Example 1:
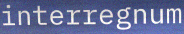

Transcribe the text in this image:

interregnum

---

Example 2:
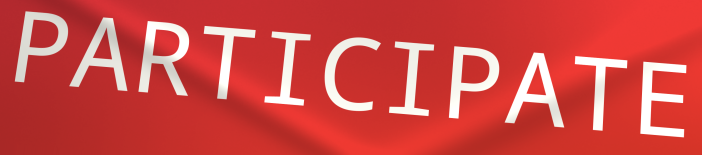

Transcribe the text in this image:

PARTICIPATE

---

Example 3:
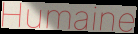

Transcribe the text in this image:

Humaine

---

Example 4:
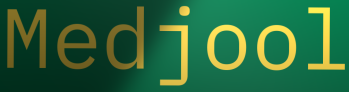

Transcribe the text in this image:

Medjool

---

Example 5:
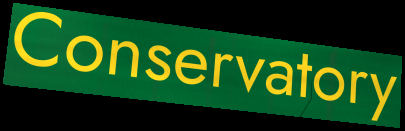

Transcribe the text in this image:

Conservatory